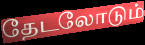
தேடலோடும்